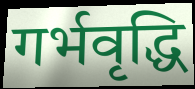
गर्भवृद्धि